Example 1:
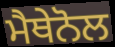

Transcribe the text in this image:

ਮੈਥੇਨੋਲ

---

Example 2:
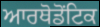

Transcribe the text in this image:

ਆਰਥੋਡੋਂਟਿਕ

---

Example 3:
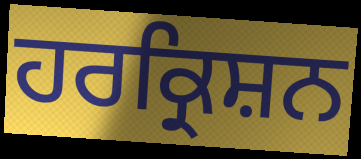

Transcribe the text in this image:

ਹਰਕ੍ਰਿਸ਼ਨ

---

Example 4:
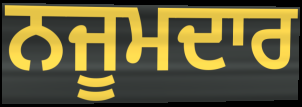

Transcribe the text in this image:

ਨਜੂਮਦਾਰ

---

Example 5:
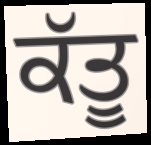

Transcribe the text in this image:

ਕੱਤੂ